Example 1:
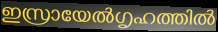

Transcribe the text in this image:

ഇസ്രായേൽഗൃഹത്തിൽ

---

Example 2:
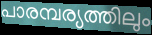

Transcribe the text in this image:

പാരമ്പര്യത്തിലും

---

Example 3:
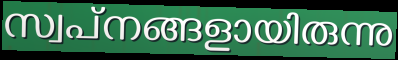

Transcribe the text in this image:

സ്വപ്‌നങ്ങളായിരുന്നു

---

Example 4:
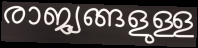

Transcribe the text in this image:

രാജ്യങ്ങളുള്ള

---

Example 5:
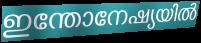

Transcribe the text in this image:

ഇന്തോനേഷ്യയിൽ